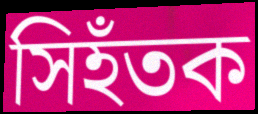
সিহঁতক